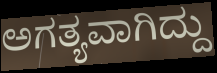
ಅಗತ್ಯವಾಗಿದ್ದು